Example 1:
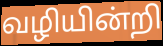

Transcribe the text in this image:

வழியின்றி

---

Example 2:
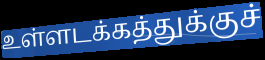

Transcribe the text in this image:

உள்ளடக்கத்துக்குச்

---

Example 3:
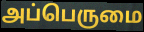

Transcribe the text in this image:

அப்பெருமை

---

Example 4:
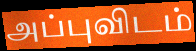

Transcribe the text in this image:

அப்புவிடம்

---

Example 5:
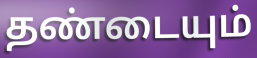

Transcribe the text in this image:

தண்டையும்